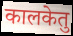
कालकेतु